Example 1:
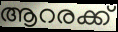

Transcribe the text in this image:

ആറരക്ക്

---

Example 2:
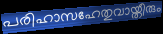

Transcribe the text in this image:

പരിഹാസഹേതുവായ്തീരും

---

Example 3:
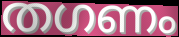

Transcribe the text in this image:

തഗണം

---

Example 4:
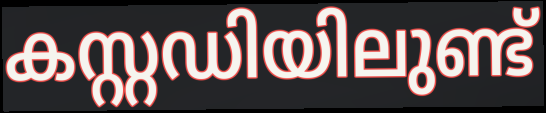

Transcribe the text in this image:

കസ്റ്റഡിയിലുണ്ട്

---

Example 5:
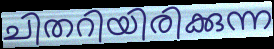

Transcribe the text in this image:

ചിതറിയിരിക്കുന്ന